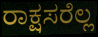
ರಾಕ್ಷಸರೆಲ್ಲ